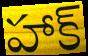
హాక్